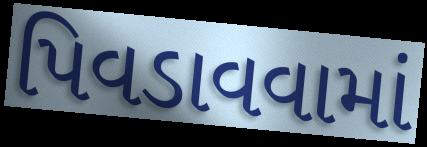
પિવડાવવામાં